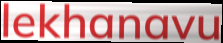
lekhanavu